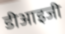
डीआइजी